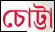
চোট্টা